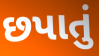
છપાતું